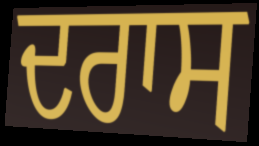
ਦਰਾਸ